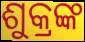
ଶୁକ୍ରଙ୍କ